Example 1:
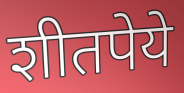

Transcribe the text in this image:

शीतपेये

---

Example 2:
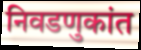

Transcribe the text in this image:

निवडणुकांत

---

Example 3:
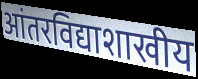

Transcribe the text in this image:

आंतरविद्याशाखीय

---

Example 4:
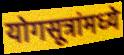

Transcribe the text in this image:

योगसूत्रांमध्ये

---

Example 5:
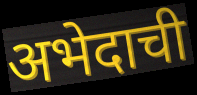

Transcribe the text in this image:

अभेदाची